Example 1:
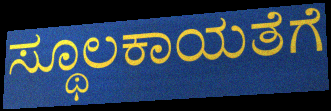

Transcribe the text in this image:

ಸ್ಥೂಲಕಾಯತೆಗೆ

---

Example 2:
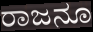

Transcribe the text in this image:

ರಾಜನೂ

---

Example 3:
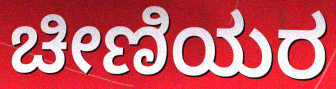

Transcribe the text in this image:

ಚೀಣಿಯರ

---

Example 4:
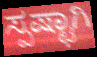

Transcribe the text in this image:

ಸ್ಪಷ್ಟಾಗಿ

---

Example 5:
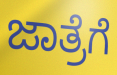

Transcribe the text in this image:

ಜಾತ್ರೆಗೆ